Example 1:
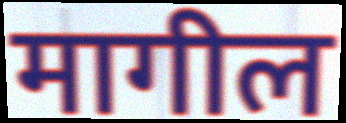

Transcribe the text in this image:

मागील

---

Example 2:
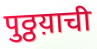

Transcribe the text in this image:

पुठ्ठय़ाची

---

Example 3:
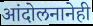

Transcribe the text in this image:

आंदोलनानेही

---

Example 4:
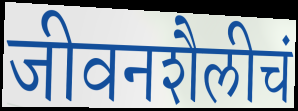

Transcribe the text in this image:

जीवनशैलीचं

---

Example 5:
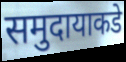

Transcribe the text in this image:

समुदायाकडे